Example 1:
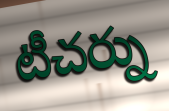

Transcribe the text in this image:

టీచర్ను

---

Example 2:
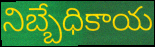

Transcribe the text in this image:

నిబ్బేధికాయ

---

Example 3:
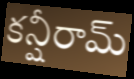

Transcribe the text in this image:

కన్షీరామ్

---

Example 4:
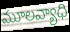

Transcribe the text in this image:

మూలవ్యాధి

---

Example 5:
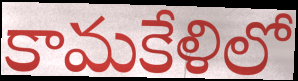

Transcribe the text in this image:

కామకేళిలో